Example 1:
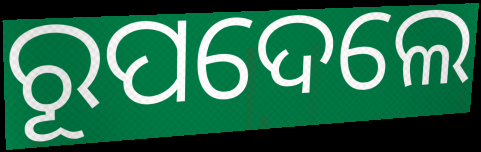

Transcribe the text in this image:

ରୂପଦେଲେ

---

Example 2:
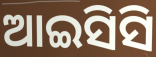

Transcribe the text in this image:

ଆଇସିସି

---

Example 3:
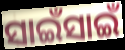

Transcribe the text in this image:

ସାଇଁସାଇଁ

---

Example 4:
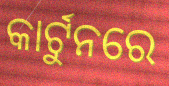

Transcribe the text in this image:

କାର୍ଟୁନରେ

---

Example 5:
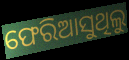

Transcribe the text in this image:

ଫେରିଆସୁଥିଲୁ